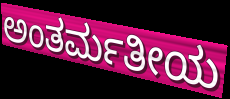
ಅಂತರ್ಮತೀಯ